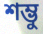
শম্ভু